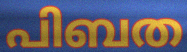
പിബത